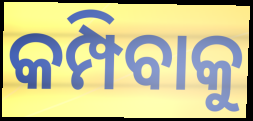
କମ୍ପିବାକୁ